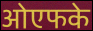
ओएफके